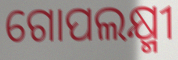
ଗୋପଲକ୍ଷ୍ମୀ